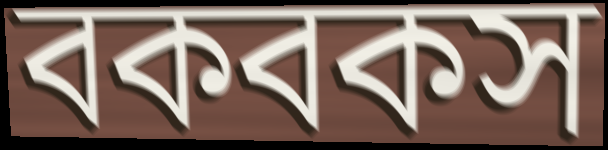
বকবকস